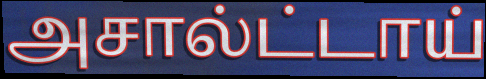
அசால்ட்டாய்